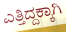
ಎತ್ತಿದ್ದಕ್ಕಾಗಿ